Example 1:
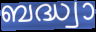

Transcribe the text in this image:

ബദ്ധ്വാ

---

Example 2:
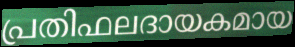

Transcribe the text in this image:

പ്രതിഫലദായകമായ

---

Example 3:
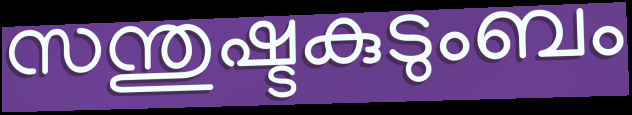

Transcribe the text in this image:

സന്തുഷ്ടകുടുംബം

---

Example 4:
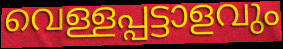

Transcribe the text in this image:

വെള്ളപ്പട്ടാളവും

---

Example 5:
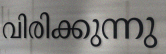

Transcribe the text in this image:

വിരിക്കുന്നു